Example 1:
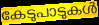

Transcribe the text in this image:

കേടുപാടുകൾ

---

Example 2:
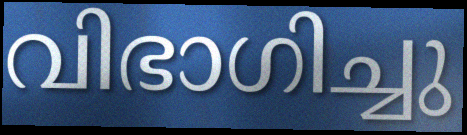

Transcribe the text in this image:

വിഭാഗിച്ചു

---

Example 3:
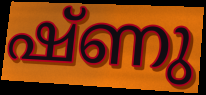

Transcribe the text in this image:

ഷ്ണു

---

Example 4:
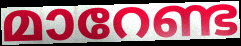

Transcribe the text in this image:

മാറേണ്ട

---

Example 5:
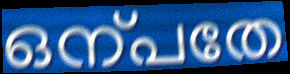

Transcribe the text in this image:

ഒന്പതേ